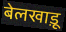
बेलखाड़ू